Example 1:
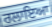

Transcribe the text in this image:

ਰਲਾਇਆ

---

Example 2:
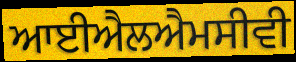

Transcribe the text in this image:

ਆਈਐਲਐਮਸੀਵੀ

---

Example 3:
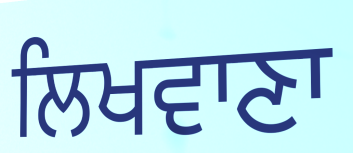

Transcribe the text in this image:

ਲਿਖਵਾਣਾ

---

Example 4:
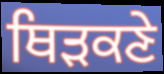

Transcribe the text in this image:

ਥਿੜਕਣੇ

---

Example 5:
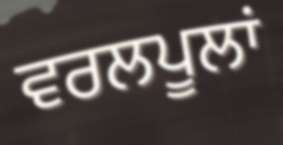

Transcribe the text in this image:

ਵਰਲਪੂਲਾਂ